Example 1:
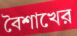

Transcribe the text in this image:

বৈশাখের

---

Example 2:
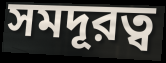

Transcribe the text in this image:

সমদূরত্ব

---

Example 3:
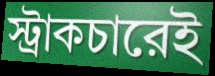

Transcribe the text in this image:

স্ট্রাকচারেই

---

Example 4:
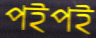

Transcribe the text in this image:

পইপই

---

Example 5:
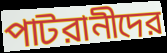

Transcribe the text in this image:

পাটরানীদের